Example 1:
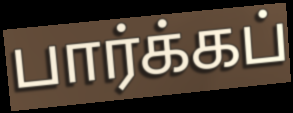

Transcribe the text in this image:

பார்க்கப்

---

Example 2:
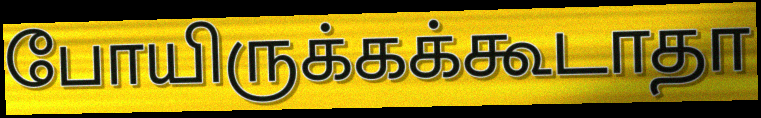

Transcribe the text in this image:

போயிருக்கக்கூடாதா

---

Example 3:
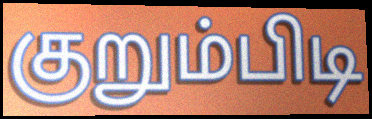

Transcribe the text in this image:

குறும்பிடி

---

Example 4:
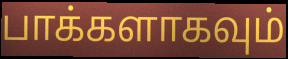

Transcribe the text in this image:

பாக்களாகவும்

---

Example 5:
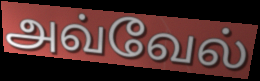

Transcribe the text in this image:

அவ்வேல்